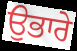
ਉਭਾਰੇ